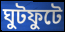
ঘুটফুটে